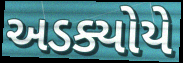
અડક્યોયે